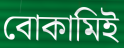
বোকামিই